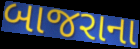
બાજરાના